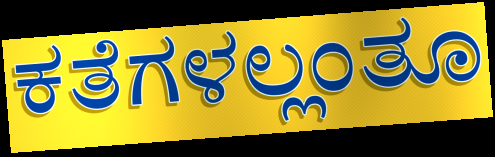
ಕತೆಗಳಲ್ಲಂತೂ